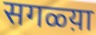
सगळ्य़ा